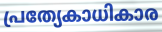
പ്രത്യേകാധികാര